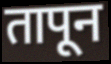
तापून